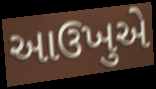
આઉખુએ